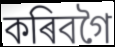
কৰিবগৈ